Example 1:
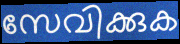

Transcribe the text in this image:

സേവിക്കുക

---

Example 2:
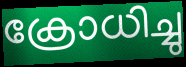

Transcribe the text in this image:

ക്രോധിച്ചു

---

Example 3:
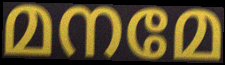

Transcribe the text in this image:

മനമേ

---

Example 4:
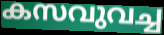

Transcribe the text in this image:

കസവുവച്ച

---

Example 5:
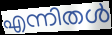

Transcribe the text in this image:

എന്നിതൾ